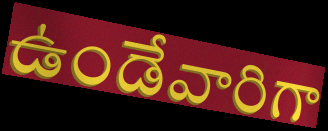
ఉండేవారిగా